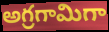
అగ్రగామిగా